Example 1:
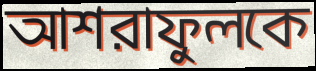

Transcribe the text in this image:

আশরাফুলকে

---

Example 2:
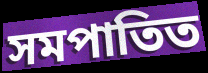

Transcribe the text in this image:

সমপাতিত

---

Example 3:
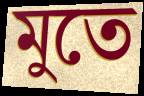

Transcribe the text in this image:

মুতে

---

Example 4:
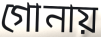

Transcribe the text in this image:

গোনায়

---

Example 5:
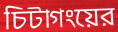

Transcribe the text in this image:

চিটাগংয়ের